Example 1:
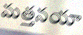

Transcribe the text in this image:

మత్తనయా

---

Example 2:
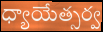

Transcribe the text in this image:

ధ్యాయేత్సర్వ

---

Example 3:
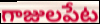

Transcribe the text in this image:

గాజులపేట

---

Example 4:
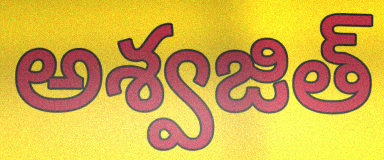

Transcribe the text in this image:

అశ్వజిత్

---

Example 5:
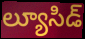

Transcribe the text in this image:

ల్యూసిడ్